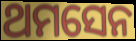
ଥମସେନ